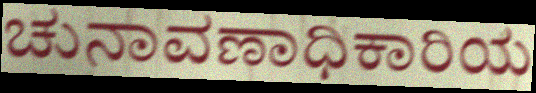
ಚುನಾವಣಾಧಿಕಾರಿಯ